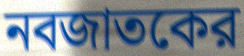
নবজাতকের